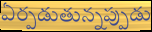
ఏర్పడుతున్నప్పుడు